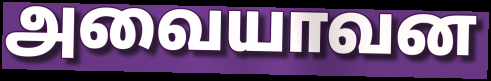
அவையாவன